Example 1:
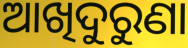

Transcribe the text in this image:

ଆଖିଦୁରୁଣା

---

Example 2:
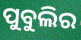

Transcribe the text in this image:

ପୁବୁଲିର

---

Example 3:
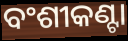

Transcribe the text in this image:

ବଂଶୀକଣ୍ଟା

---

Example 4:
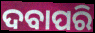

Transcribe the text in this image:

ଦବାପରି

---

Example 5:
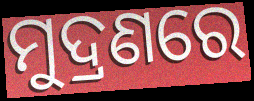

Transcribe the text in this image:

ମୁଦ୍ରଣରେ